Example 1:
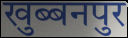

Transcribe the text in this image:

खुब्बनपुर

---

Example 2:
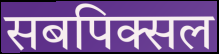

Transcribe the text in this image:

सबपिक्सल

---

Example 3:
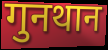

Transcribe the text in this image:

गुनथान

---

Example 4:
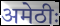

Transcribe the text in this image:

अमेठीः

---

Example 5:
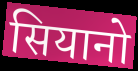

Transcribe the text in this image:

सियानो